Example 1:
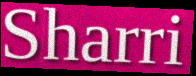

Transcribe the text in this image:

Sharri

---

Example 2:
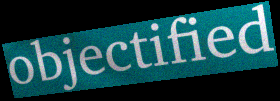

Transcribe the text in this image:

objectified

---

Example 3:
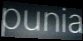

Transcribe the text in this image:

punia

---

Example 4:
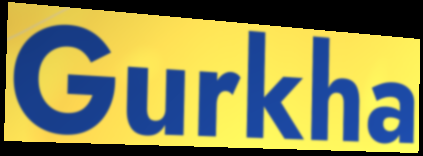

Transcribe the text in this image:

Gurkha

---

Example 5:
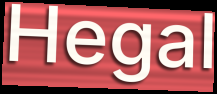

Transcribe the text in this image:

Hegal